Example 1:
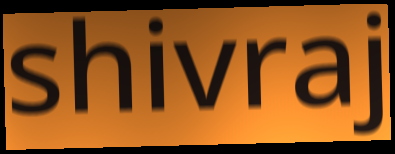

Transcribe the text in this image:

shivraj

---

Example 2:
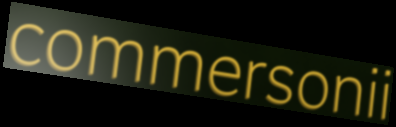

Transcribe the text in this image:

commersonii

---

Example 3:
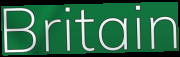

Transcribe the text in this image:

Britain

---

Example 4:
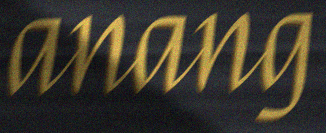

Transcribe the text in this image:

anang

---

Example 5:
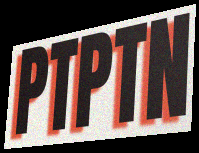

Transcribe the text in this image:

PTPTN